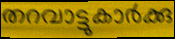
തറവാട്ടുകാർക്കു